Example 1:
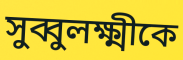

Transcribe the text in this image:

সুব্বুলক্ষ্মীকে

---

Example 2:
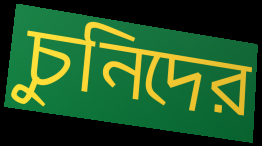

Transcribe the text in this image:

চুনিদের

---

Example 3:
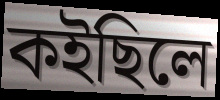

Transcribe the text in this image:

কইছিলে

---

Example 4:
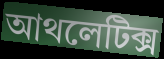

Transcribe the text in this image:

আথলেটিক্স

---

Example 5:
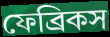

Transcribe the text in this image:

ফেব্রিকস